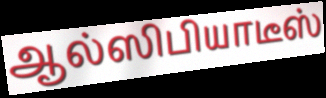
ஆல்ஸிபியாடீஸ்